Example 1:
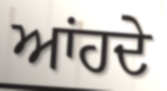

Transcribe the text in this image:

ਆਂਹਦੇ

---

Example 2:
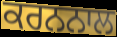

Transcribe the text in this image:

ਕਰਨਨਾਲ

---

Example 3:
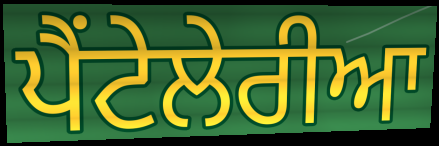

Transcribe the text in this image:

ਪੈਂਟੇਲੇਰੀਆ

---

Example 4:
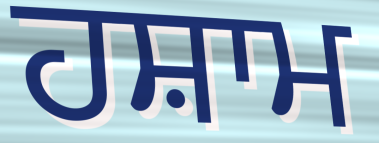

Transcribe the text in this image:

ਹਸ਼ਾਮ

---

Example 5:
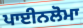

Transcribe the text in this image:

ਪਾਈਨਲੋਮਾ